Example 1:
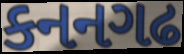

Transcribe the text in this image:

કનનગઢ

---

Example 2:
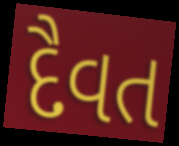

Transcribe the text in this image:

દૈવત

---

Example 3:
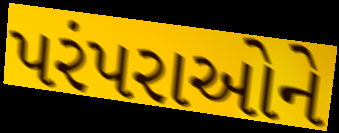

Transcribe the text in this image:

પરંપરાઓને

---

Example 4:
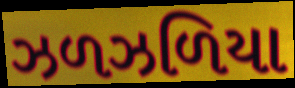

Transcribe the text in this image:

ઝળઝળિયા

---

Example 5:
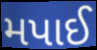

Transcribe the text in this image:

મપાઈ